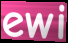
ewi